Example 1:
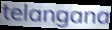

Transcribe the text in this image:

telangana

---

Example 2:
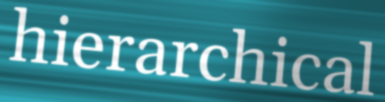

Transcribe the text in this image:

hierarchical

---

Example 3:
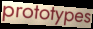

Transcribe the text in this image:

prototypes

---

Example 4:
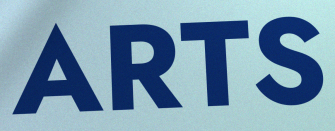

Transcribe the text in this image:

ARTS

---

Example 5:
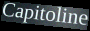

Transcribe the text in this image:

Capitoline